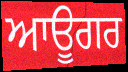
ਆਊਗਰ